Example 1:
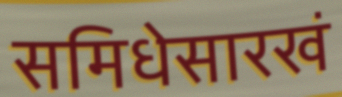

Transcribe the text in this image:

समिधेसारखं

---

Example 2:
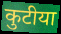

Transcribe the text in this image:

कुटीया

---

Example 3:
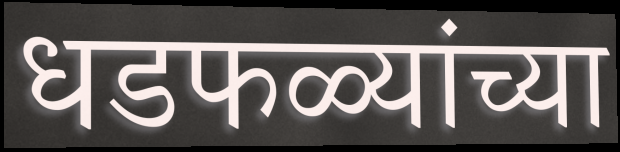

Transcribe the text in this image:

धडफळ्यांच्या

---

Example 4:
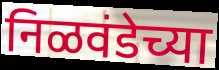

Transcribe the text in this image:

निळवंडेच्या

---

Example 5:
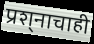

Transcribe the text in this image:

प्रश्नाचाही